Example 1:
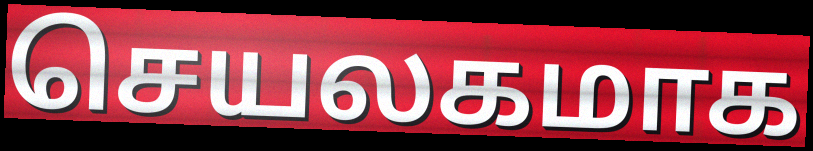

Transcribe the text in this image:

செயலகமாக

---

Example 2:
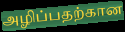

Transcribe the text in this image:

அழிப்பதற்கான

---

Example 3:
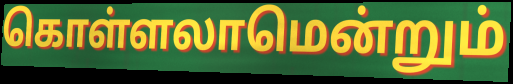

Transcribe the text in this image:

கொள்ளலாமென்றும்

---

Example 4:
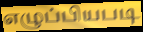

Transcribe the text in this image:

எழுப்பியபடி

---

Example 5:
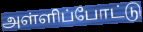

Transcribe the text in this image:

அள்ளிப்போட்டு